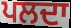
ਪਲਦਾ